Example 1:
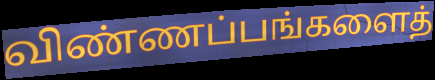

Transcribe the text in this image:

விண்ணப்பங்களைத்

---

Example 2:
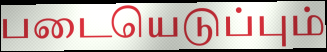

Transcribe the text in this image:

படையெடுப்பும்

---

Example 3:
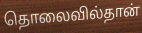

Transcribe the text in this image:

தொலைவில்தான்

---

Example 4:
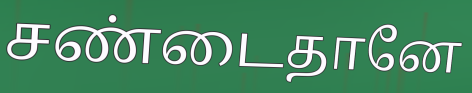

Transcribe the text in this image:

சண்டைதானே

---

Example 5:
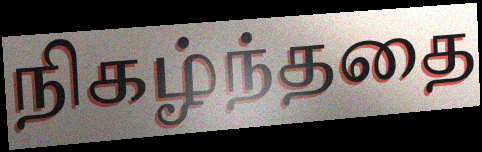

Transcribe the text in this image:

நிகழ்ந்ததை